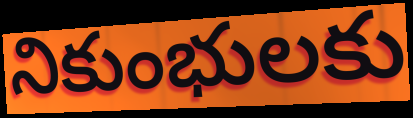
నికుంభులకు